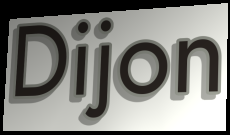
Dijon